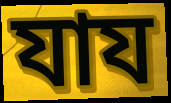
যায